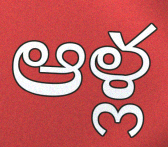
ఆళ్ల